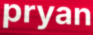
pryan